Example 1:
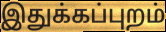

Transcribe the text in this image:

இதுக்கப்புறம்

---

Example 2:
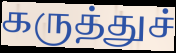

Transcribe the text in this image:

கருத்துச்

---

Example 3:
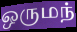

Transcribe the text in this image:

ஒருமந்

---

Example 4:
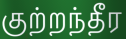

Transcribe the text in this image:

குற்றந்தீர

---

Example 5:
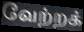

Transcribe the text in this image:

வேற்றக்